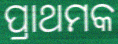
ପ୍ରାଥମକ